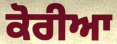
ਕੋਰੀਆ